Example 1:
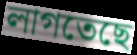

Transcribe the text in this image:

লাগতেছে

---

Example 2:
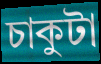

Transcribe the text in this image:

চাকুটা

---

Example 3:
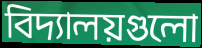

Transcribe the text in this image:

বিদ্যালয়গুলো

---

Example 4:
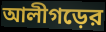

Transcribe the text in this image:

আলীগড়ের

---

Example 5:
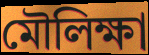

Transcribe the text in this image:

মৌলিক্ষা